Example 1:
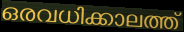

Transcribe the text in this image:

ഒരവധിക്കാലത്ത്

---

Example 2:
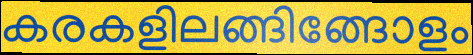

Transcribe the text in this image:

കരകളിലങ്ങിങ്ങോളം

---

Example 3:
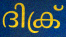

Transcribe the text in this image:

ദിക്ര്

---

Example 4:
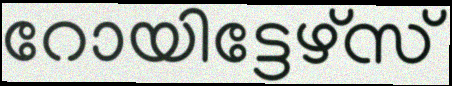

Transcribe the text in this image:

റോയിട്ടേഴ്സ്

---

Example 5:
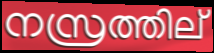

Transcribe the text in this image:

നസ്രത്തില്